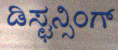
ಡಿಸ್ಟನ್ಸಿಂಗ್